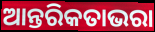
ଆନ୍ତରିକତାଭରା